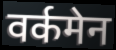
वर्कमेन